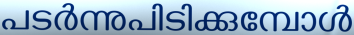
പടർന്നുപിടിക്കുമ്പോൾ